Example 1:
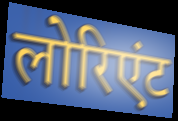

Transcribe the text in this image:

लोरिएंट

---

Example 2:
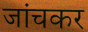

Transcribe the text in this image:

जांचकर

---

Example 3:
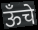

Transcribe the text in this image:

ऊँचे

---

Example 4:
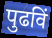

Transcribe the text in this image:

पुढविं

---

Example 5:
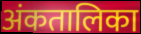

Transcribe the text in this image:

अंकतालिका